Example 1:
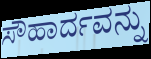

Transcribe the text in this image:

ಸೌಹಾರ್ದವನ್ನು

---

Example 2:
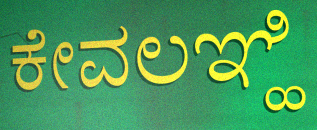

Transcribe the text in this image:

ಕೇವಲಞ್ಹಿ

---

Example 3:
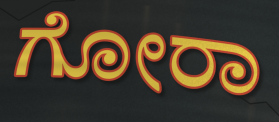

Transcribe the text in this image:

ಗೋರಾ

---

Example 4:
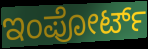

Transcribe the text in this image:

ಇಂಪೋರ್ಟ್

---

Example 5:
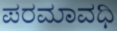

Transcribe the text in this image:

ಪರಮಾವಧಿ